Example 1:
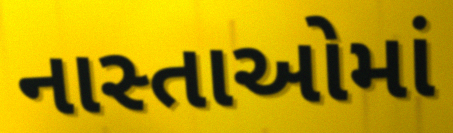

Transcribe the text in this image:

નાસ્તાઓમાં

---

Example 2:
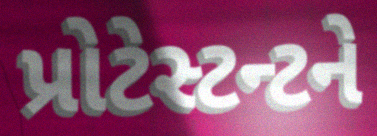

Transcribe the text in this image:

પ્રોટેસ્ટન્ટને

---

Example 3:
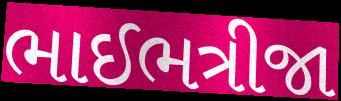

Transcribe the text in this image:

ભાઈભત્રીજા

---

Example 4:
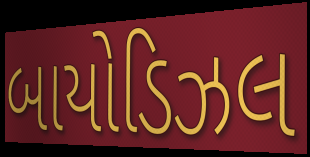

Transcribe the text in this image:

બાયોડિઝલ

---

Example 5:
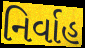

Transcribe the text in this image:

નિર્વાહ